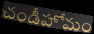
చండీహోమం